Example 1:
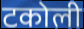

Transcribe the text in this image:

टकोली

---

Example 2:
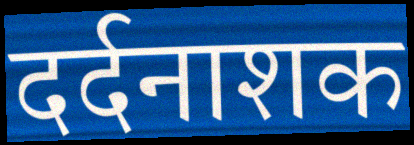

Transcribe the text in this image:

दर्दनाशक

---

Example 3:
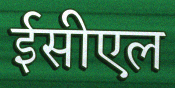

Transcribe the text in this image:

ईसीएल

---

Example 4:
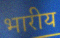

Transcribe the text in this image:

भारीय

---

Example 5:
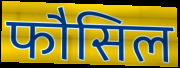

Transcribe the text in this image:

फौसिल